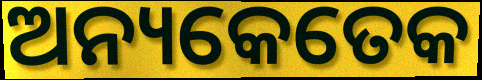
ଅନ୍ୟକେତେକ